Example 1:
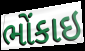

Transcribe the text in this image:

ભોંકાઇ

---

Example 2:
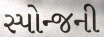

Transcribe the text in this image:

સ્પોન્જની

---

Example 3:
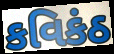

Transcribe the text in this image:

કવિકંઠ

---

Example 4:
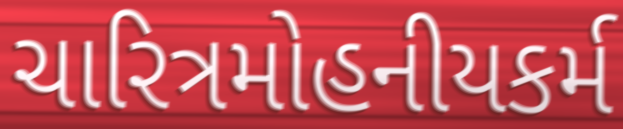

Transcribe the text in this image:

ચારિત્રમોહનીયકર્મ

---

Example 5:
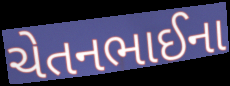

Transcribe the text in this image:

ચેતનભાઈના